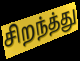
சிறந்த்து